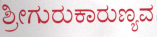
ಶ್ರೀಗುರುಕಾರುಣ್ಯವ